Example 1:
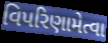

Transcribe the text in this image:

વિપરિણામેત્વા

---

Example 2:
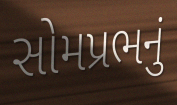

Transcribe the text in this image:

સોમપ્રભનું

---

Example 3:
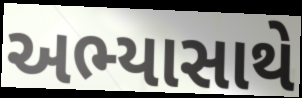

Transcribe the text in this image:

અભ્યાસાથે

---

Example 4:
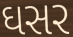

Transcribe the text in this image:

ઘસર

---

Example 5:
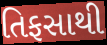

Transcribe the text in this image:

તિફસાથી